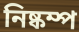
নিষ্কম্প